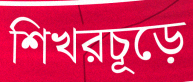
শিখরচূড়ে